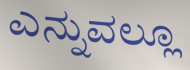
ಎನ್ನುವಲ್ಲೂ